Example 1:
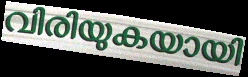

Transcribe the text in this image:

വിരിയുകയായി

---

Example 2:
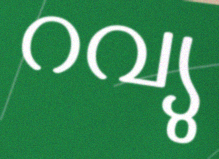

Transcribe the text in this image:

റവ്യു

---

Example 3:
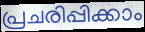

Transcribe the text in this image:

പ്രചരിപ്പിക്കാം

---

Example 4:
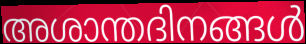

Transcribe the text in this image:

അശാന്തദിനങ്ങൾ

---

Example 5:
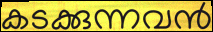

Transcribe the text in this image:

കടക്കുന്നവൻ